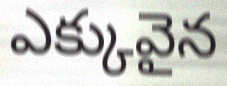
ఎక్కువైన